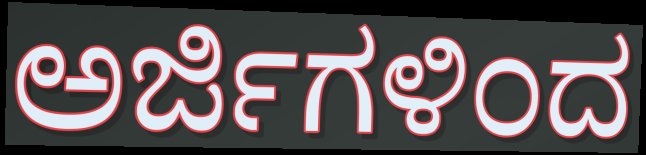
ಅರ್ಜಿಗಳಿಂದ